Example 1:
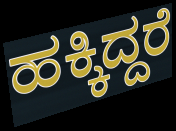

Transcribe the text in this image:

ಹಕ್ಕಿದ್ದರೆ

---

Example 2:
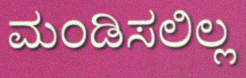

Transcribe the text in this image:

ಮಂಡಿಸಲಿಲ್ಲ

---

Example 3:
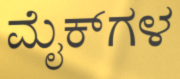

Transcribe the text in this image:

ಮೈಕ್‌ಗಳ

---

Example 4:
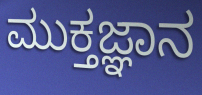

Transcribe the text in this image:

ಮುಕ್ತಜ್ಞಾನ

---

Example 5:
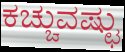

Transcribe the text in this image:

ಕಚ್ಚುವಷ್ಟು